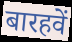
बारहवें